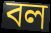
বল